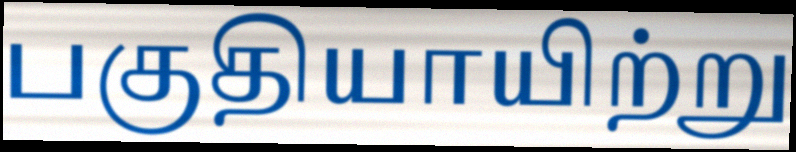
பகுதியாயிற்று